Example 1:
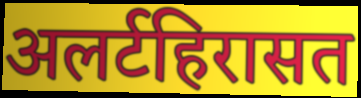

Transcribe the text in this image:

अलर्टहिरासत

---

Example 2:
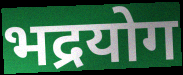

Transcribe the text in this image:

भद्रयोग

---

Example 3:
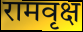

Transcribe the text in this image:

रामवृक्ष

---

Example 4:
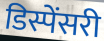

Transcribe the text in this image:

डिस्पेंसरी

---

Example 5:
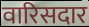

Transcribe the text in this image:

वारिसदार